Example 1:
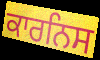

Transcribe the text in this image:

ਕਾਰਨਿਸ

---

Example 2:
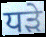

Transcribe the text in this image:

ਧੜੇ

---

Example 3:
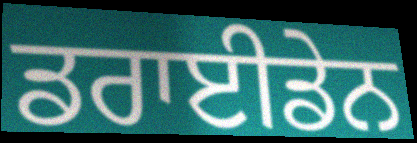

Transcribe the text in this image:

ਡਰਾਈਡੇਨ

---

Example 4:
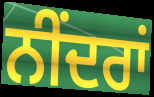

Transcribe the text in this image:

ਨੀਂਦਰਾਂ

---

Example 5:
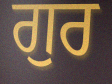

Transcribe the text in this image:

ਗੁਰ